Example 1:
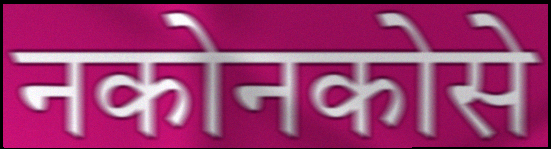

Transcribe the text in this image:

नकोनकोसे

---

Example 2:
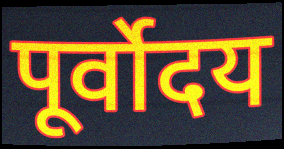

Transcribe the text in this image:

पूर्वोदय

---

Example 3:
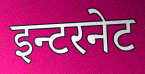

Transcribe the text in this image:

इन्टरनेट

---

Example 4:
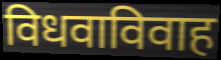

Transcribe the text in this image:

विधवाविवाह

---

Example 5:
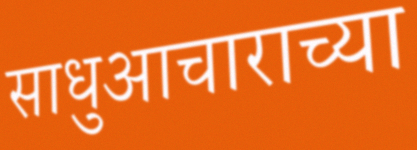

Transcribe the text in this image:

साधुआचाराच्या